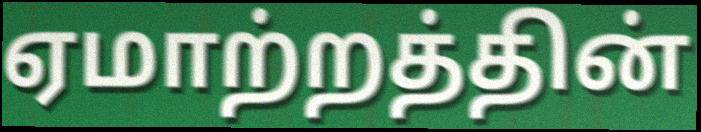
ஏமாற்றத்தின்